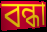
বন্ধা